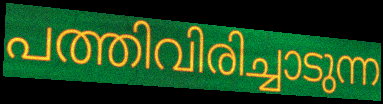
പത്തിവിരിച്ചാടുന്ന